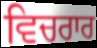
ਵਿਚਰਾਰ